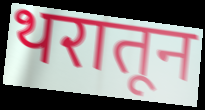
थरातून